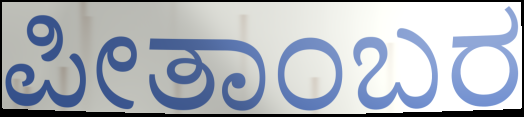
ಪೀತಾಂಬರ